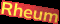
Rheum